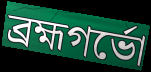
ব্রহ্মগর্ভো